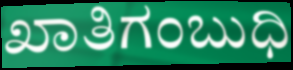
ಖಾತಿಗಂಬುಧಿ